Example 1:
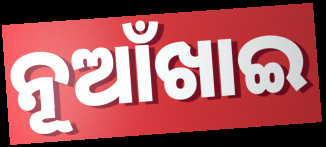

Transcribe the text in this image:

ନୂଆଁଖାଇ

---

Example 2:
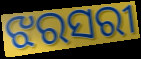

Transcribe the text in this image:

ଝରସରୀ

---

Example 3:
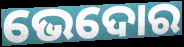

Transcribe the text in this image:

ଭେଦୋର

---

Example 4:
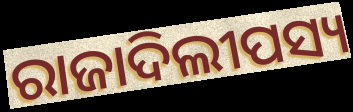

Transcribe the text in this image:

ରାଜାଦିଲୀପସ୍ୟ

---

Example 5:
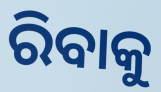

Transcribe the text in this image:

ରିବାକୁ